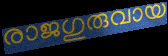
രാജഗുരുവായ